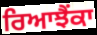
ਰਿਆਝੈਂਕਾ